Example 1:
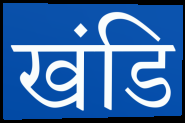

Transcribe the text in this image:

खंडि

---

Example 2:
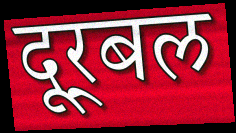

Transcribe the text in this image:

दूर्बल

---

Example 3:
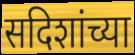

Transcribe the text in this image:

सदिशांच्या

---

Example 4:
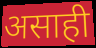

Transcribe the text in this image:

असाही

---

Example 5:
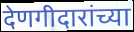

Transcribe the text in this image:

देणगीदारांच्या